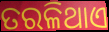
ତରଳିଥାଏ